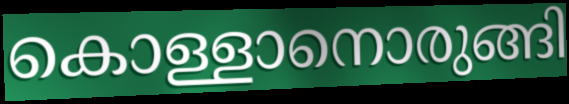
കൊള്ളാനൊരുങ്ങി